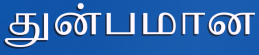
துன்பமான